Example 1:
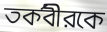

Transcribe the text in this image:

তর্কবীরকে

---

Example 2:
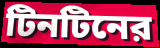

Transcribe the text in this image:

টিনটিনের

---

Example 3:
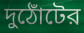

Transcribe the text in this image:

দুঠোঁটের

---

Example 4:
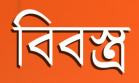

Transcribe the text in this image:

বিবস্ত্র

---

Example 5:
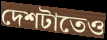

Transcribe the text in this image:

দেশটাতেও